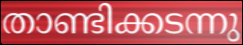
താണ്ടിക്കടന്നു